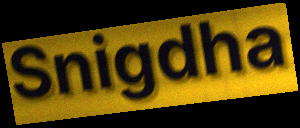
Snigdha